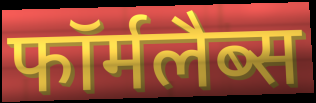
फॉर्मलैब्स